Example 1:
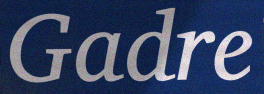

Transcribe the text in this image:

Gadre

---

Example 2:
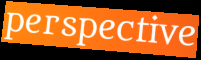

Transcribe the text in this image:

perspective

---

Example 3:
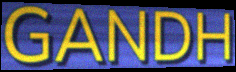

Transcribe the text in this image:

GANDH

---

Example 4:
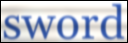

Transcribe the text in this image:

sword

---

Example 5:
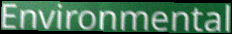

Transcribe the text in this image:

Environmental